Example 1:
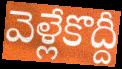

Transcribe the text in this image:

వెళ్లేకొద్దీ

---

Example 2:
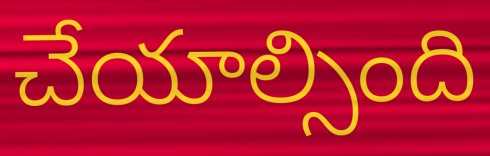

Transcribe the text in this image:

చేయాల్సింది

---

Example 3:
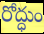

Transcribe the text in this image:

రోద్ధుం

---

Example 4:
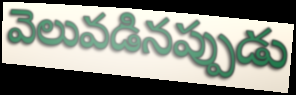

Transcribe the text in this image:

వెలువడినప్పుడు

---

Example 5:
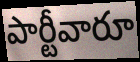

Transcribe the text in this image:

పార్టీవారూ